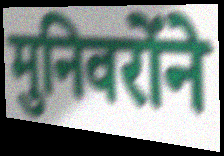
मुनिवरोंने